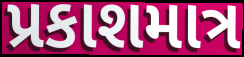
પ્રકાશમાત્ર